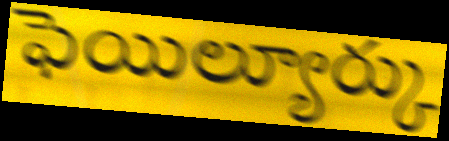
ఫెయిల్యూర్కు